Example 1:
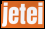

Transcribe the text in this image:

jetei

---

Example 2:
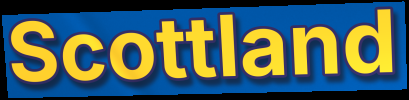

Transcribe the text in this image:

Scottland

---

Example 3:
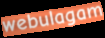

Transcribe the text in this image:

webulagam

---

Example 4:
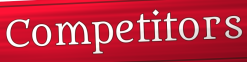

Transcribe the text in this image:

Competitors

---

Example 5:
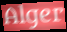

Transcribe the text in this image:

Alger